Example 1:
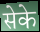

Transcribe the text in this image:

सेके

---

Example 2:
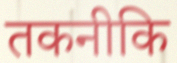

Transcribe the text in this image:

तकनीकि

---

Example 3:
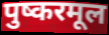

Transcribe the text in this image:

पुष्करमूल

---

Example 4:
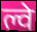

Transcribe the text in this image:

ल्वे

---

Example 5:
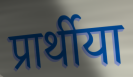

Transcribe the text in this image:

प्रार्थीया